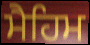
ਮੈਹਿਮ